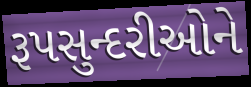
રૂપસુન્દરીઓને